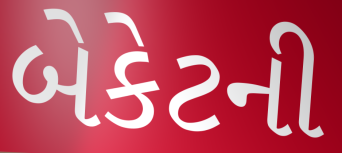
બેકેટની